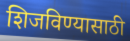
शिजविण्यासाठी